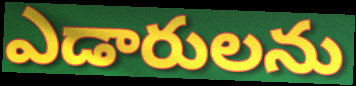
ఎడారులను